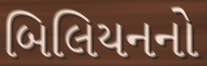
બિલિયનનો